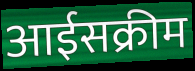
आईसक्रीम